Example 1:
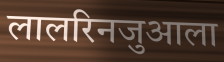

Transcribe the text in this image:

लालरिनजुआला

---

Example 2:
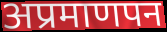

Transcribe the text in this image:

अप्रमाणपन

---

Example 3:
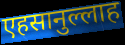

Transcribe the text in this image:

एहसानुल्लाह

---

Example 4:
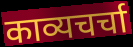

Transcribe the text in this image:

काव्यचर्चा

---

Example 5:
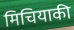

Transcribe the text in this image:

मिचियाकी